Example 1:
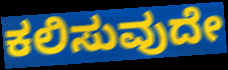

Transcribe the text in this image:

ಕಲಿಸುವುದೇ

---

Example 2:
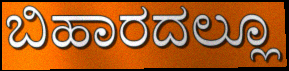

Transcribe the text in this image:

ಬಿಹಾರದಲ್ಲೂ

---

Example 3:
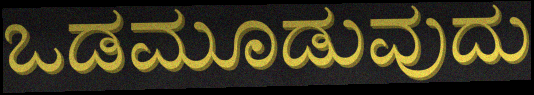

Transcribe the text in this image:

ಒಡಮೂಡುವುದು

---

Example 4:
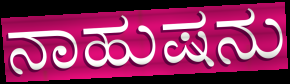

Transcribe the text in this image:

ನಾಹುಷನು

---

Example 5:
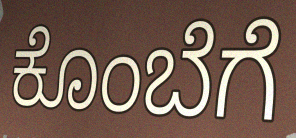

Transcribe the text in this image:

ಕೊಂಬೆಗೆ